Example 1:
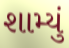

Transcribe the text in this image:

શામ્યું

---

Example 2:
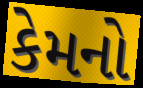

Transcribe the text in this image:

કેમનો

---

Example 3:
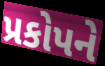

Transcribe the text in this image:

પ્રકોપને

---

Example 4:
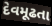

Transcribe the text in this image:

દેવમૂઢતા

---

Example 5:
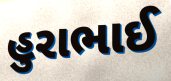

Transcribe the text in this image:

હુરાભાઈ